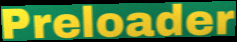
Preloader